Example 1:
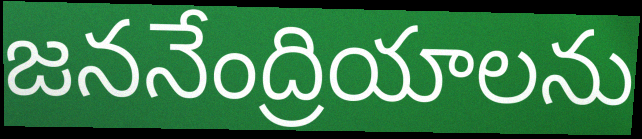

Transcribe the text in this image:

జననేంద్రియాలను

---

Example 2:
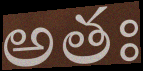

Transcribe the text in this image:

అతః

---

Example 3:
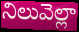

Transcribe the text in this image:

నిలువెల్లా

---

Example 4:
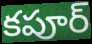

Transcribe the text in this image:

కపూర్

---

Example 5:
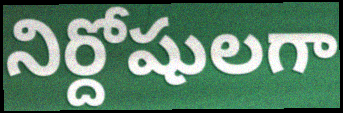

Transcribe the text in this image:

నిర్దోషులగా